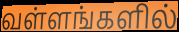
வள்ளங்களில்